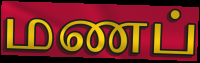
மணப்